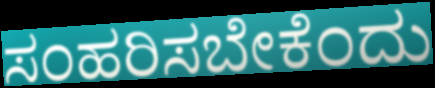
ಸಂಹರಿಸಬೇಕೆಂದು